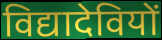
विद्यादेवियों